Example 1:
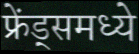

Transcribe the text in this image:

फ्रेंड्समध्ये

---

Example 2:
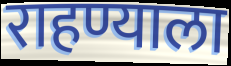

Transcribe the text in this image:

राहण्याला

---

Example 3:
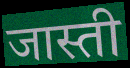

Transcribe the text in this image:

जास्ती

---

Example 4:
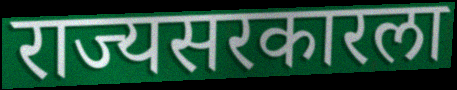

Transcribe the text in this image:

राज्यसरकारला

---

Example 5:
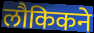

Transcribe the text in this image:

लौकिकने